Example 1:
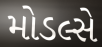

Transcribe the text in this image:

મોડલ્સે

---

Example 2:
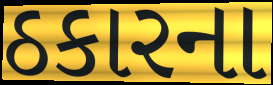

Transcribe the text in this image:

ઠકારના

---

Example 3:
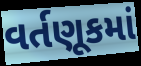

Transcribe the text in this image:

વર્તણૂકમાં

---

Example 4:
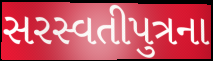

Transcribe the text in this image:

સરસ્વતીપુત્રના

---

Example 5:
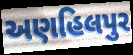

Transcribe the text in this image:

અણહિલપુર